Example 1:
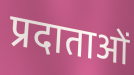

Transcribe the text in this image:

प्रदाताओं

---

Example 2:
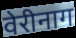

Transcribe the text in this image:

वेरीनाग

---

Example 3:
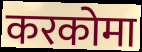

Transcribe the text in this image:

करकोमा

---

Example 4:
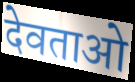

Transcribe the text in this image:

देवताओ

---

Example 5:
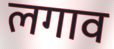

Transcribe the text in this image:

लगाव